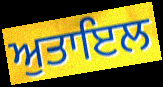
ਅੁਤਾਇਲ